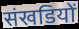
संखडियों